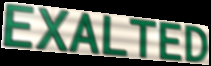
EXALTED